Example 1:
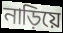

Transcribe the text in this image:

নাড়িয়ে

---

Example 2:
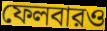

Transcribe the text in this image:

ফেলবারও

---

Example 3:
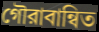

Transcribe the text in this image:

গৌরাবান্বিত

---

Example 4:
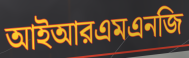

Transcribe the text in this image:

আইআরএমএনজি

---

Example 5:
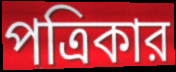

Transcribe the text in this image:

পত্রিকার